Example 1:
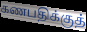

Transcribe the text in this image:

கணபதிக்குத்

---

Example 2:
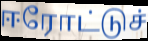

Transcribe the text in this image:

ஈரோட்டுச்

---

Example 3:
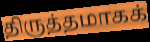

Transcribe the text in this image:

திருத்தமாகக்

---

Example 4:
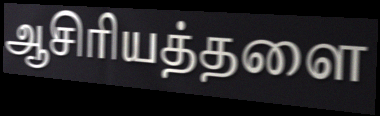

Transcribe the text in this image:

ஆசிரியத்தளை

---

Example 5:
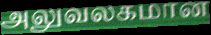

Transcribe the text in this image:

அலுவலகமான